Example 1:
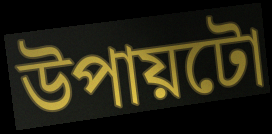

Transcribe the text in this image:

উপায়টো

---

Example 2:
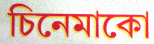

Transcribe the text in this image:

চিনেমাকো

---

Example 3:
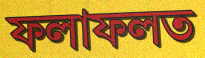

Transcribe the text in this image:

ফলাফলত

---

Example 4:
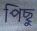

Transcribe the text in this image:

পিছু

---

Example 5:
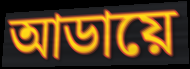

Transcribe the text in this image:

আডায়ে